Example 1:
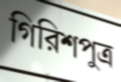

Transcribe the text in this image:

গিরিশপুত্র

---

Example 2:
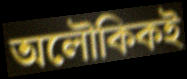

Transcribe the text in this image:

অলৌকিকই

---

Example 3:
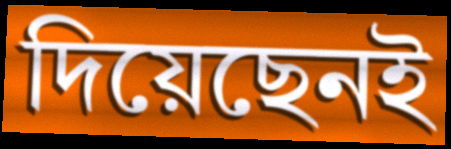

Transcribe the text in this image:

দিয়েছেনই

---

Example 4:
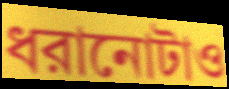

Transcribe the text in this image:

ধরানোটাও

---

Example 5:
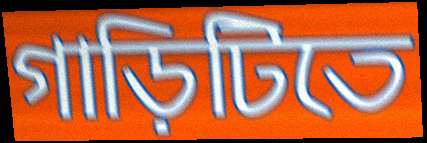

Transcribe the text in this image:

গাড়িটিতে